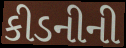
કીડનીની